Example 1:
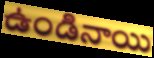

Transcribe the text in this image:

ఉండినాయి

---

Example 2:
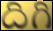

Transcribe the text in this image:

దిగి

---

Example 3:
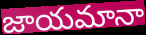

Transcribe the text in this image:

జాయమానా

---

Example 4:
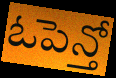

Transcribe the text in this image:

ఓపెన్తో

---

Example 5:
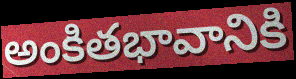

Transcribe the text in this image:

అంకితభావానికి